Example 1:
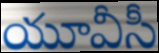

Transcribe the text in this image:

యూవీసీ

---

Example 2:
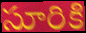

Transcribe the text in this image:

సూరికి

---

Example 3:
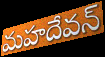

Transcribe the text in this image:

మహదేవన్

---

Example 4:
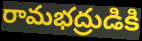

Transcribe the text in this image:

రామభద్రుడికి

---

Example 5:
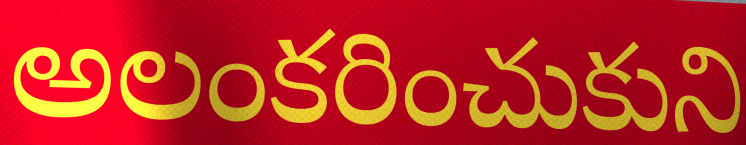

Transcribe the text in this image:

అలంకరించుకుని